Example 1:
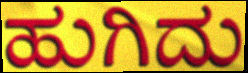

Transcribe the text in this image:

ಹುಗಿದು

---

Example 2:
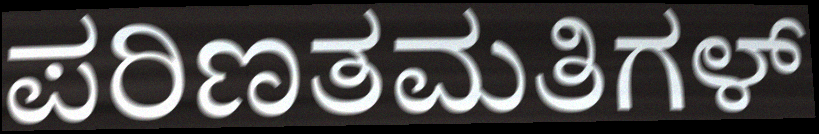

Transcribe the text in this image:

ಪರಿಣತಮತಿಗಳ್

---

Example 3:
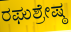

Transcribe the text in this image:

ರಘುಶ್ರೇಷ್ಠ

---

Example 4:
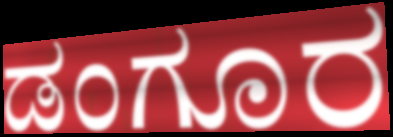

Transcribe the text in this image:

ಡಂಗೂರ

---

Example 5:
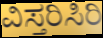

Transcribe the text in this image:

ವಿಸ್ತರಿಸಿರಿ